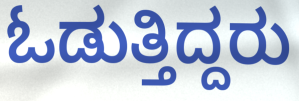
ಓಡುತ್ತಿದ್ದರು